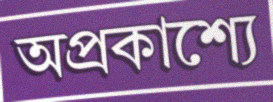
অপ্রকাশ্যে